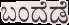
ಬಂದೆಡೆ